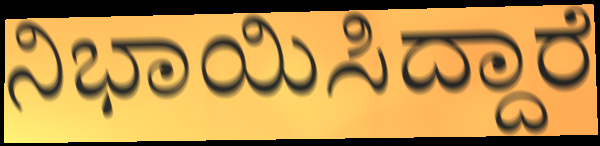
ನಿಭಾಯಿಸಿದ್ದಾರೆ